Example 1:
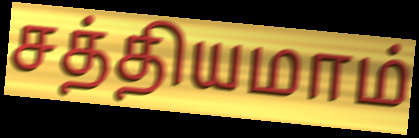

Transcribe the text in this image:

சத்தியமாம்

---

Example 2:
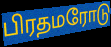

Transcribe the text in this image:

பிரதமரோடு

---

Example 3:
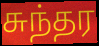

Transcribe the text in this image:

சுந்தர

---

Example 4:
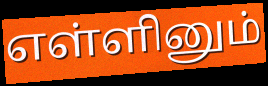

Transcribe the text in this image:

எள்ளினும்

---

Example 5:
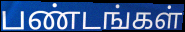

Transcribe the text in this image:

பண்டங்கள்